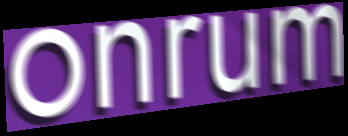
onrum